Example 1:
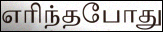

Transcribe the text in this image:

எரிந்தபோது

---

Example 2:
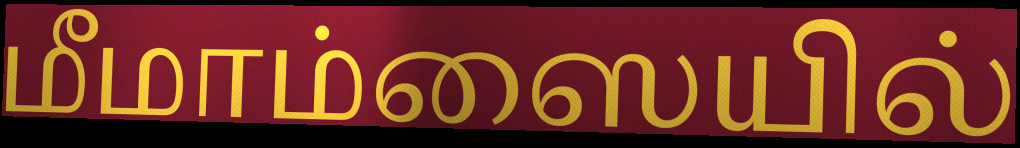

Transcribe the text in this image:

மீமாம்ஸையில்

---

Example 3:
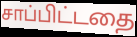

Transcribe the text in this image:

சாப்பிட்டதை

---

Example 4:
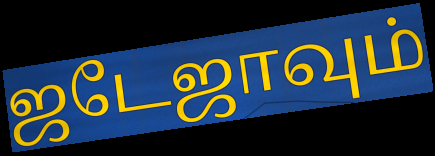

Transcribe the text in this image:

ஜடேஜாவும்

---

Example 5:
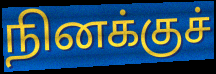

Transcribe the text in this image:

நினக்குச்